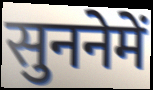
सुननेमें